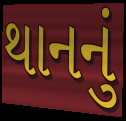
થાનનું